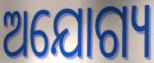
ଅଯୋଗ୍ୟ